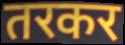
तरकर